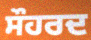
ਸੌਹਰਦ